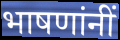
भाषणांनीं